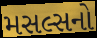
મસલ્સનો